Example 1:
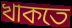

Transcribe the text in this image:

খাকতে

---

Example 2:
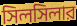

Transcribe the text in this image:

সিলসিলার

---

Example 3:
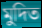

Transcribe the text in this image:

মুদিত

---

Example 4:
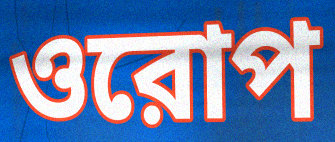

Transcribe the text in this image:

ওরোপ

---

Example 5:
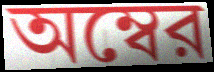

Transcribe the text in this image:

অম্বের